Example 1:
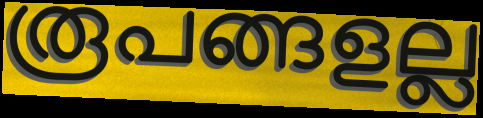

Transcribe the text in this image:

രൂപങ്ങളല്ല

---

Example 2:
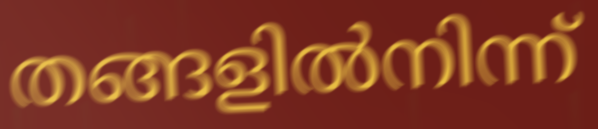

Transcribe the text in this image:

തങ്ങളിൽനിന്ന്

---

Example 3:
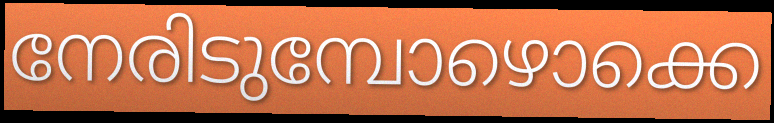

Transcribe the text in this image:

നേരിടുമ്പോഴൊക്കെ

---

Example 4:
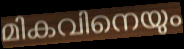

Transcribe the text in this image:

മികവിനെയും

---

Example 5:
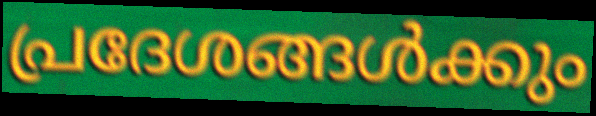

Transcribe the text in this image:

പ്രദേശങ്ങൾക്കും